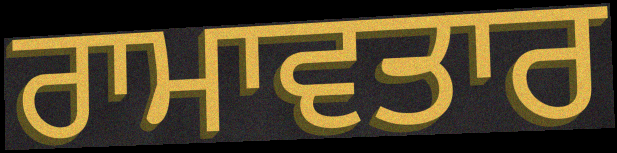
ਰਾਮਾਵਤਾਰ